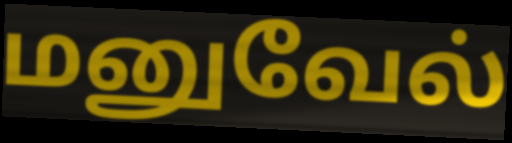
மனுவேல்